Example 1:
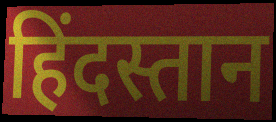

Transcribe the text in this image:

हिंदस्तान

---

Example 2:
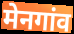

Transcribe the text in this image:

मेनगांव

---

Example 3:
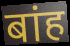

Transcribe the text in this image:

बांह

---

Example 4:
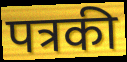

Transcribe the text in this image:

पत्रकी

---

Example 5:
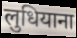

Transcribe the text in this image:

लुधियाना